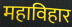
महाविहार